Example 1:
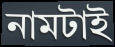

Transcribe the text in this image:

নামটাই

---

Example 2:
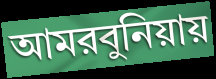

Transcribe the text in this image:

আমরবুনিয়ায়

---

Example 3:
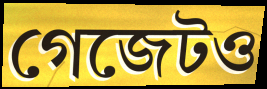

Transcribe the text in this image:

গেজেটও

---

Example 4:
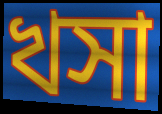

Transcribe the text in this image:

খসা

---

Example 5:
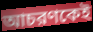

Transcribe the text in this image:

আচরণকেই